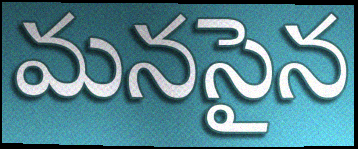
మనసైన